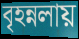
বৃহন্নলায়